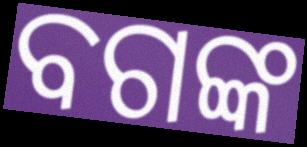
ବଗଙ୍କ